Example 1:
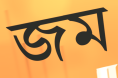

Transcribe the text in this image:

জম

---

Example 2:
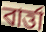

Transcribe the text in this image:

বার্ত্তা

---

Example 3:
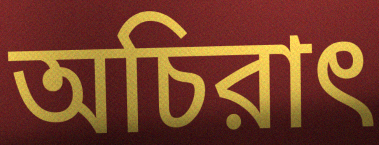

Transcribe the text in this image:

অচিরাৎ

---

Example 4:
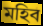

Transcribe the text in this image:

মহিব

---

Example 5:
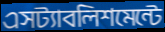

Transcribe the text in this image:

এসট্যাবলিশমেন্টে